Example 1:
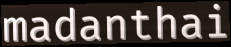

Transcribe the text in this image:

madanthai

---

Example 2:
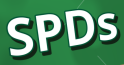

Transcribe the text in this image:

SPDs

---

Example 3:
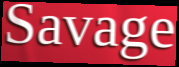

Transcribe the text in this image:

Savage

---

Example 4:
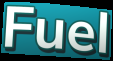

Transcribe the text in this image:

Fuel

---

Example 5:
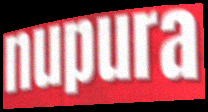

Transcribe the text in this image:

nupura